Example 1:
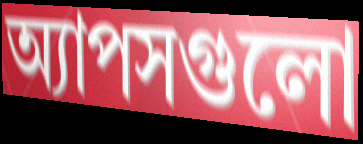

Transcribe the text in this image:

অ্যাপসগুলো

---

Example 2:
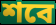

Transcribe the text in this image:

শবে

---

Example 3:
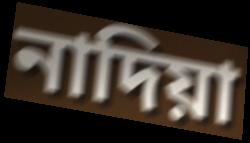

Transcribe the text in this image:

নাদিয়া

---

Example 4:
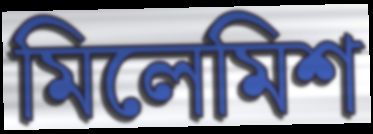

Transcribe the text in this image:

মিলেমিশ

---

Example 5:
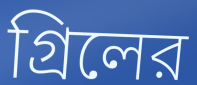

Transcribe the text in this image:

গ্রিলের